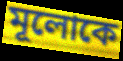
মূলোকে